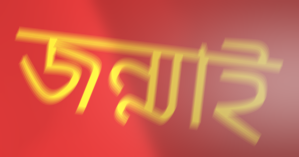
জন্মাই